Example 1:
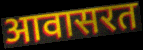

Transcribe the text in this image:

आवासरत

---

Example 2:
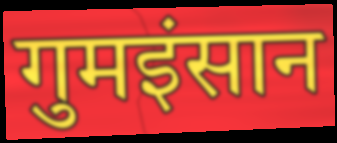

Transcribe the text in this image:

गुमइंसान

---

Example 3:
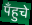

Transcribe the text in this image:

पँहुचे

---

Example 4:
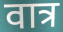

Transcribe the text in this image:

वात्र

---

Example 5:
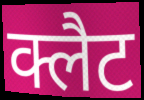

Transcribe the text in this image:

क्लैट